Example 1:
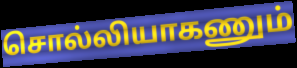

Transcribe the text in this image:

சொல்லியாகணும்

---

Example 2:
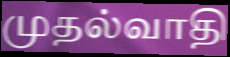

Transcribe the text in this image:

முதல்வாதி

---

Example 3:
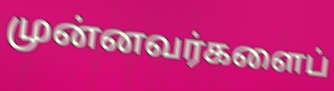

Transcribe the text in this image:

முன்னவர்களைப்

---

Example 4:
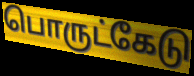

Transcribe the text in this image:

பொருட்கேடு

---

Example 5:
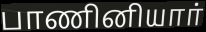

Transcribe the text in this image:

பாணினியார்